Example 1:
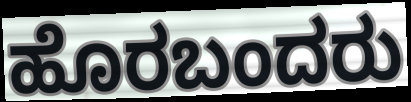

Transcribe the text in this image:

ಹೊರಬಂದರು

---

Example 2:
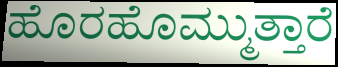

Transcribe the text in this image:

ಹೊರಹೊಮ್ಮುತ್ತಾರೆ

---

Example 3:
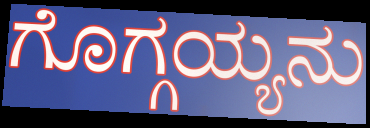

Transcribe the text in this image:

ಗೊಗ್ಗಯ್ಯನು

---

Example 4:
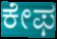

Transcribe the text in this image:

ಕೇಫ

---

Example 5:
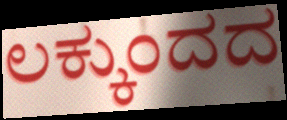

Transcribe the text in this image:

ಲಕ್ಕುಂದದ